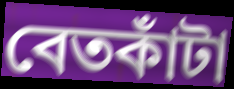
বেতকাঁটা